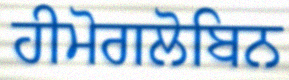
ਹੀਮੋਗਲੋਬਿਨ